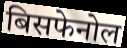
बिसफेनोल